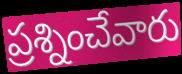
ప్రశ్నించేవారు